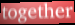
together